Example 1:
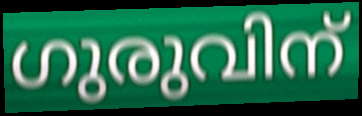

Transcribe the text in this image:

ഗുരുവിന്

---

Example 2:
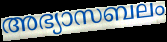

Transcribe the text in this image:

അഭ്യാസബലം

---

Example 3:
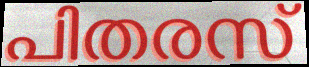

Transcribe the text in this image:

പിതരസ്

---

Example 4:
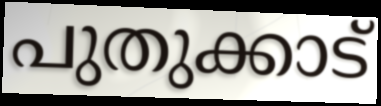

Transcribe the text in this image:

പുതുക്കാട്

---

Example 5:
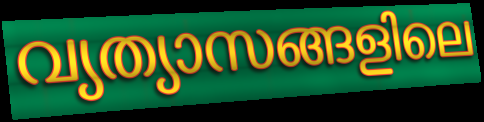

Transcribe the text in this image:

വ്യത്യാസങ്ങളിലെ